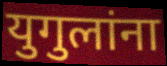
युगुलांना